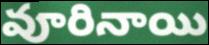
వూరినాయి